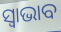
ସ୍ୱାଭାବ